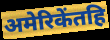
अमेरिकेंतहि